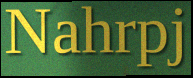
Nahrpj